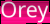
Orey